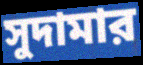
সুদামার